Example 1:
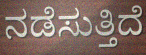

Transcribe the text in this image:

ನಡೆಸುತ್ತಿದೆ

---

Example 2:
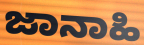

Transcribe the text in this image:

ಜಾನಾಹಿ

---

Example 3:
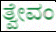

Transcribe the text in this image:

ತ್ವೇವಂ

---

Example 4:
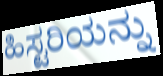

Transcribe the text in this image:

ಹಿಸ್ಟರಿಯನ್ನು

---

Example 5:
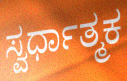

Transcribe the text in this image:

ಸ್ವರ್ಧಾತ್ಮಕ